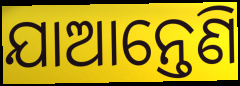
ଯାଆନ୍ତେଣି